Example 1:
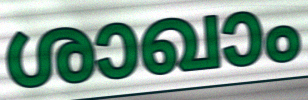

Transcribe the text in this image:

ശാഖാം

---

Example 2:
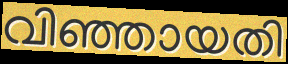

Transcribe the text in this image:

വിഞ്ഞായതി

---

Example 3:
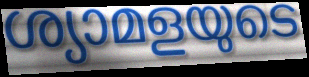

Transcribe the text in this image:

ശ്യാമളയുടെ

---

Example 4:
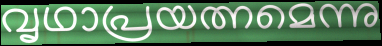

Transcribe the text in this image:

വൃഥാപ്രയത്നമെന്നു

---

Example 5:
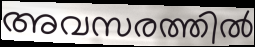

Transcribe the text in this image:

അവസരത്തിൽ